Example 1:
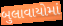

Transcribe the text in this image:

બુલાવાયોમાં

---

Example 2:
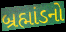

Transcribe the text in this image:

બ્રહ્માંડનો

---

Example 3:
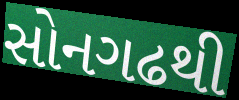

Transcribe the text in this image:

સોનગઢથી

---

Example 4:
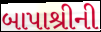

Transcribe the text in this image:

બાપાશ્રીની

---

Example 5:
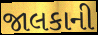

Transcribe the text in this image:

જાલકાની